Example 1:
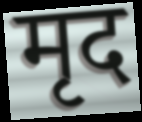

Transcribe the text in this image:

मृद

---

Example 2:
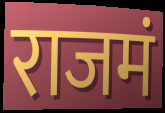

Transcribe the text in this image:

राजमं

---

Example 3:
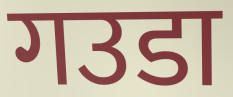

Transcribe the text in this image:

गउडा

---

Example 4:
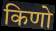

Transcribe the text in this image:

किणो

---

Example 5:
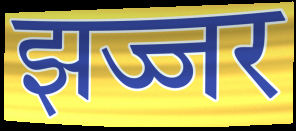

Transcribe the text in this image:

झज्जर